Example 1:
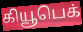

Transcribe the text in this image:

கியூபெக்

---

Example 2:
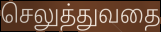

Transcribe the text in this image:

செலுத்துவதை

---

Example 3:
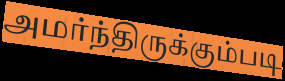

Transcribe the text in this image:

அமர்ந்திருக்கும்படி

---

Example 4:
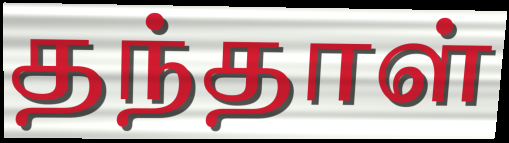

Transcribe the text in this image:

தந்தாள்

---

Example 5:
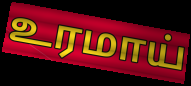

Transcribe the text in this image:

உரமாய்